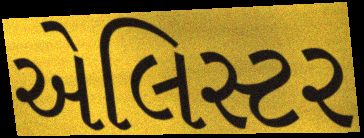
એલિસ્ટર